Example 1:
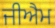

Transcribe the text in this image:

ਜੀਐਮ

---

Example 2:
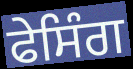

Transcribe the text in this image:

ਫੇਸਿੰਗ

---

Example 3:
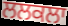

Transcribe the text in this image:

ਲਲਕਲਾ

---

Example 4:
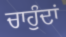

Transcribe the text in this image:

ਚਾਹੁੰਦਾਂ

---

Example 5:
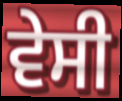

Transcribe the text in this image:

ਵੇਸੀ